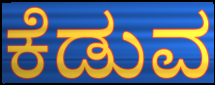
ಕೆಡುವ